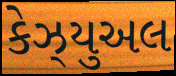
કેઝ્યુઅલ